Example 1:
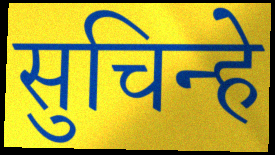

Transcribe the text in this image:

सुचिन्हे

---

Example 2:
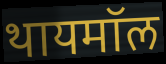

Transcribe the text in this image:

थायमॉल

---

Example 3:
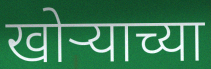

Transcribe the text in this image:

खोऱ्याच्या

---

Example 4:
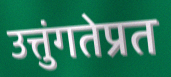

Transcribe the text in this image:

उत्तुंगतेप्रत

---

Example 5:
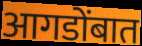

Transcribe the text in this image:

आगडोंबात